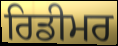
ਰਿਡੀਮਰ